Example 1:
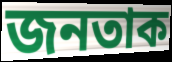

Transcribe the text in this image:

জনতাক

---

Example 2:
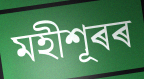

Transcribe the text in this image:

মহীশূৰৰ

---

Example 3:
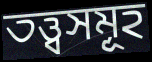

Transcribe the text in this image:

তত্ত্বসমূহ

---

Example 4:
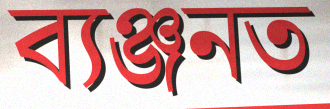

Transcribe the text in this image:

ব্যঞ্জনত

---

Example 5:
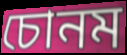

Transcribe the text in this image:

চোনম